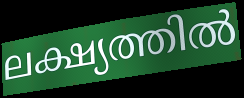
ലക്ഷ്യത്തിൽ